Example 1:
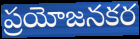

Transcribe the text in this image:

ప్రయోజనకర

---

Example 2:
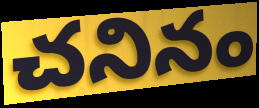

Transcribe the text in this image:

చనినం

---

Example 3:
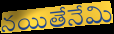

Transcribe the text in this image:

నయితేనేమి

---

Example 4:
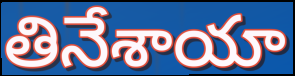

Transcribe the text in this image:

తినేశాయా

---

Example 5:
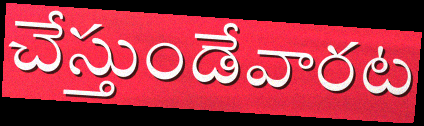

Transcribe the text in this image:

చేస్తుండేవారట